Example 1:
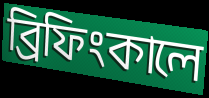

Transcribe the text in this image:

ব্রিফিংকালে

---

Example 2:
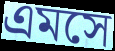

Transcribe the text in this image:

এমসে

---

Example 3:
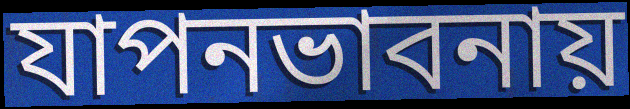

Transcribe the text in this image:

যাপনভাবনায়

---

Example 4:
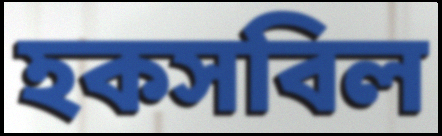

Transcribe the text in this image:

হকসবিল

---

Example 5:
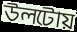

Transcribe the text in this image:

উলটোয়